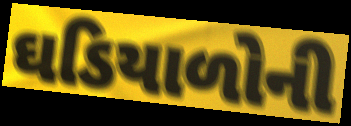
ઘડિયાળોની